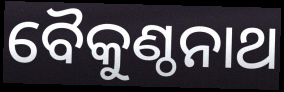
ବୈକୁଣ୍ଠନାଥ